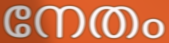
നേതം